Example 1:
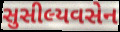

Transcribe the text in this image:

સુસીલ્યવસેન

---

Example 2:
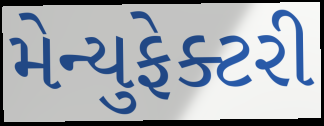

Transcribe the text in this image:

મેન્યુફેક્ટરી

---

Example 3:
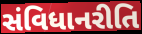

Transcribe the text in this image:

સંવિધાનરીતિ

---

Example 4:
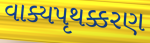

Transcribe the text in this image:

વાક્યપૃથક્કરણ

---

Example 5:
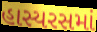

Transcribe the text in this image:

હાસ્યરસમાં